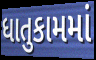
ધાતુકામમાં